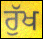
ਰੁੱਖ